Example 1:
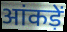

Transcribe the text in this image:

आंकड़ें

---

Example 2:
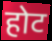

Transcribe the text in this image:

होट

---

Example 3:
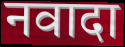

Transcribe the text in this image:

नवादा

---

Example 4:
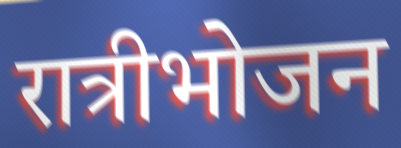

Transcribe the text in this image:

रात्रीभोजन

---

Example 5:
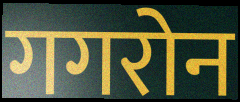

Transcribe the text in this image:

गगरोन